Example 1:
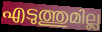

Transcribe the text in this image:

എടുത്തുമില്ല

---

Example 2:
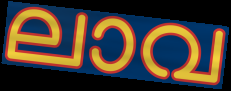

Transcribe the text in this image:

ലാവ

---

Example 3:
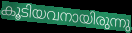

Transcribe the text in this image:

കൂടിയവനായിരുന്നു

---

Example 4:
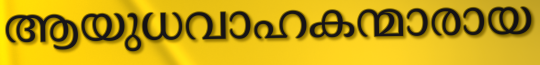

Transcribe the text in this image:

ആയുധവാഹകന്മാരായ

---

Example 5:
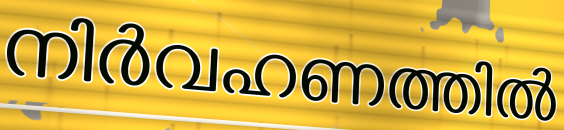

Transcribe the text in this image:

നിർവഹണത്തിൽ